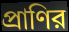
প্রাণির